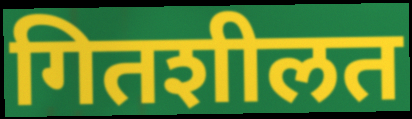
गितशीलत